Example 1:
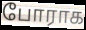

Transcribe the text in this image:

போராக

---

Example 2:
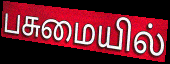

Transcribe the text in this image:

பசுமையில்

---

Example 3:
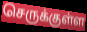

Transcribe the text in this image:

செருக்குள்ள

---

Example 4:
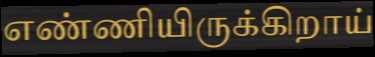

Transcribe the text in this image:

எண்ணியிருக்கிறாய்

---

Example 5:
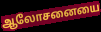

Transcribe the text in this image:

ஆலோசனையை